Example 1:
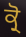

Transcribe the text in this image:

ਕ੍ਰੋ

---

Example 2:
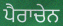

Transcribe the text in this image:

ਪੈਰਾਚੇਨ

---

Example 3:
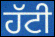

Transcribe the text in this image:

ਹੱਟੀ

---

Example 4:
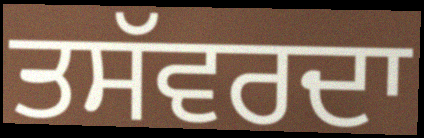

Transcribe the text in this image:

ਤਸੱਵਰਦਾ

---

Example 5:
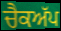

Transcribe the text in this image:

ਚੈਕਅੱਪ